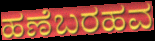
ಹಣೆಬರಹವ